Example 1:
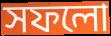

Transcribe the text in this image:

সফলো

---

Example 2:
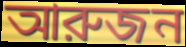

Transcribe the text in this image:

আৰুজন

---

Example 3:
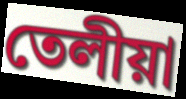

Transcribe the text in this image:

তেলীয়া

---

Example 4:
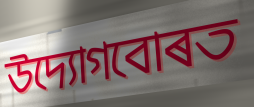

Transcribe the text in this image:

উদ্যোগবোৰত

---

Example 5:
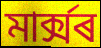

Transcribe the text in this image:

মাৰ্ক্সৰ